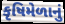
કૃષિમેળાનું